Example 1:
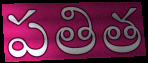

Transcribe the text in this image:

పతిత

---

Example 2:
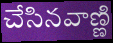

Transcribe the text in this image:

చేసినవాణ్ణి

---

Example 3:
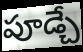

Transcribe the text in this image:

పూడ్చే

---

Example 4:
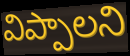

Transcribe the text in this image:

విప్పాలని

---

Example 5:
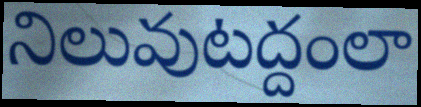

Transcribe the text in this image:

నిలువుటద్దంలా